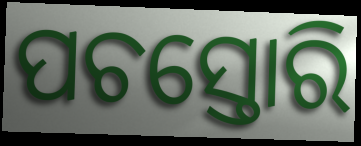
ପଚସ୍ତୋରି